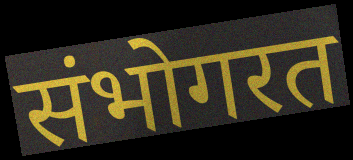
संभोगरत